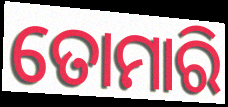
ତୋମାରି